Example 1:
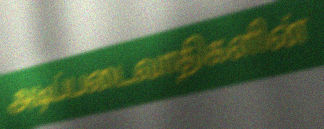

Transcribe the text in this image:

அடிப்படைவாதிகளின்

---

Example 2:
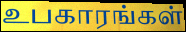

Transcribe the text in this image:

உபகாரங்கள்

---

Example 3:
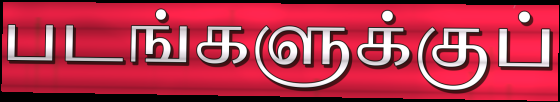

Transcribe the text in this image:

படங்களுக்குப்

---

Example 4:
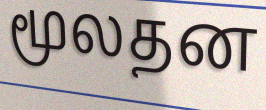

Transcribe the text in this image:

மூலதன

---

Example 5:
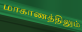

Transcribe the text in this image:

மாகாணத்திலும்